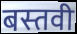
बस्तवी